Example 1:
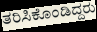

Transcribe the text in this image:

ತರಿಸಿಕೊಂಡಿದ್ದರು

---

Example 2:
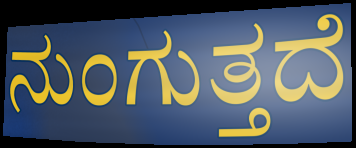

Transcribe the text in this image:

ನುಂಗುತ್ತದೆ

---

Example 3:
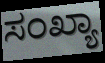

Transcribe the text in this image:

ಸಂಖ್ಯಾ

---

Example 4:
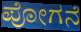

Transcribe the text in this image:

ಪೋಗನೆ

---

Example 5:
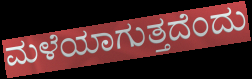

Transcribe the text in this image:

ಮಳೆಯಾಗುತ್ತದೆಂದು